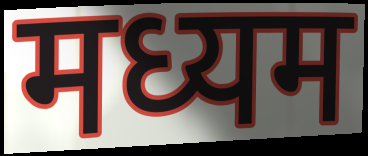
मध्यम